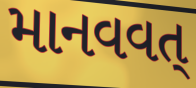
માનવવત્